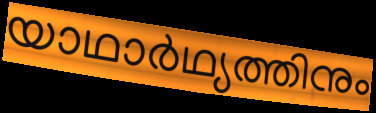
യാഥാർഥ്യത്തിനും